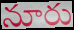
నూరు